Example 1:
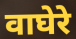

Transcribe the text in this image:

वाघेरे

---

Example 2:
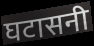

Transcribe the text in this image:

घटासनी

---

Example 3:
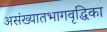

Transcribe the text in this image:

असंख्यातभागवृद्धिका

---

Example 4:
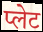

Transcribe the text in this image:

प्‍लेट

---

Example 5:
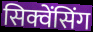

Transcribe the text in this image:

सिक्‍वेंसिंग